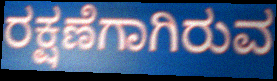
ರಕ್ಷಣೆಗಾಗಿರುವ